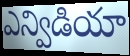
ఎన్విడియా